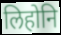
लिहोनि